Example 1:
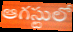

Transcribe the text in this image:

ఆగస్టులో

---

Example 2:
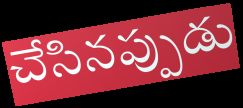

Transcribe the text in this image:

చేసినప్పుడు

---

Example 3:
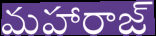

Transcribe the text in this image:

మహారాజ్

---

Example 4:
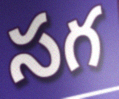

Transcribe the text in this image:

సగ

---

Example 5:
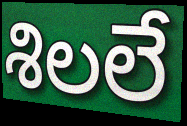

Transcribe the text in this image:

శిలలే